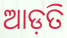
ଆଡ଼ତି